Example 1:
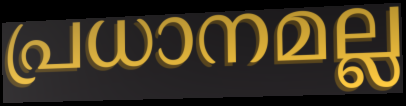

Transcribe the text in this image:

പ്രധാനമല്ല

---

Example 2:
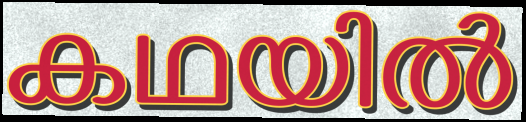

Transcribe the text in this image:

കഥയിൽ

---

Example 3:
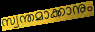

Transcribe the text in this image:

സ്വന്തമാക്കാനും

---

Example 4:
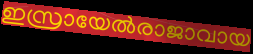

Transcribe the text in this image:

ഇസ്രായേൽരാജാവായ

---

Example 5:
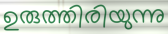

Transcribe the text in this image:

ഉരുത്തിരിയുന്നു